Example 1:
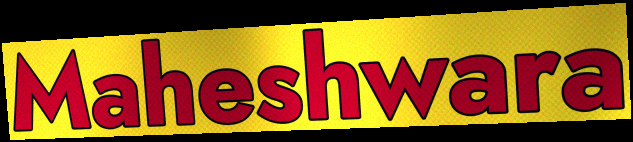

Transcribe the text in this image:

Maheshwara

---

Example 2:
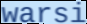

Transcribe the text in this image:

warsi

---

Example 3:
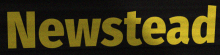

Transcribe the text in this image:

Newstead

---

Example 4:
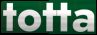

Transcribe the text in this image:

totta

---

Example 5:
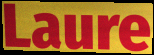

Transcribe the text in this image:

Laure